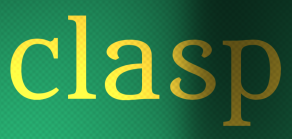
clasp